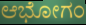
ಆಭೋಗಂ